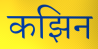
कझिन